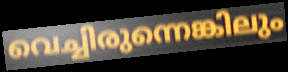
വെച്ചിരുന്നെങ്കിലും